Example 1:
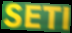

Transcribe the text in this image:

SETI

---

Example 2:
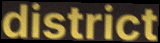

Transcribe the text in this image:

district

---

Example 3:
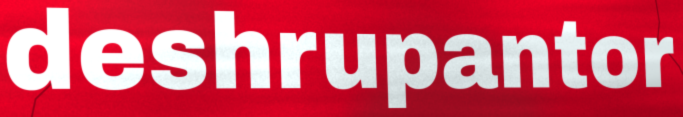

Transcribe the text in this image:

deshrupantor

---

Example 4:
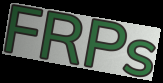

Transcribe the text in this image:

FRPs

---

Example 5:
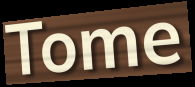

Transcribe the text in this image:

Tome